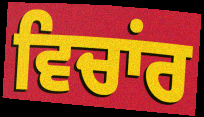
ਵਿਚਾਂਰ